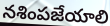
నశింపజేయాలి